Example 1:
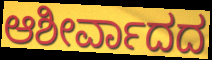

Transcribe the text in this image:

ಆಶೀರ್ವಾದದ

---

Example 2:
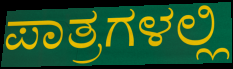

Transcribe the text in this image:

ಪಾತ್ರಗಳಲ್ಲಿ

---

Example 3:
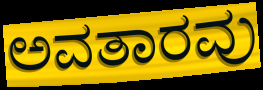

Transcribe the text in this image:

ಅವತಾರವು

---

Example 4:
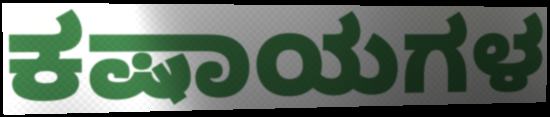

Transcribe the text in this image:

ಕಷಾಯಗಳ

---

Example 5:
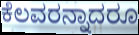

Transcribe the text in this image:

ಕೆಲವರನ್ನಾದರೂ